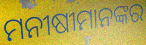
ମନୀଷୀମାନଙ୍କର